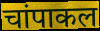
चांपाकल